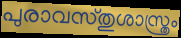
പുരാവസ്തുശാസ്ത്രം